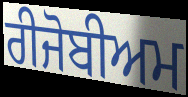
ਰੀਜੋਬੀਅਮ